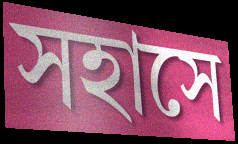
সহাসে